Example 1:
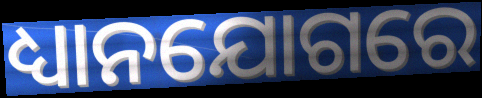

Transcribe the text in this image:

ଧ୍ୟାନଯୋଗରେ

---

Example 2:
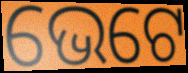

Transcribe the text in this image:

ଭେଟେ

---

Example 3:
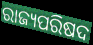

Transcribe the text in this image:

ରାଜ୍ୟପରିଷଦ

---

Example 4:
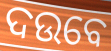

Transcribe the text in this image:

ଦଉବେ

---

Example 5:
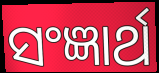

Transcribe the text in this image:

ସଂଜ୍ଞାର୍ଥ